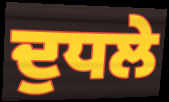
ਦੁਧਲੇ